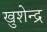
खुशेन्द्र